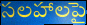
సలహాలపై